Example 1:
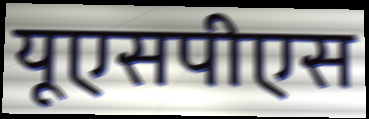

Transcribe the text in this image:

यूएसपीएस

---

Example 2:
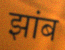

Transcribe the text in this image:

झांब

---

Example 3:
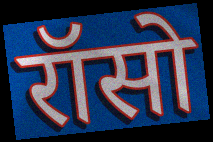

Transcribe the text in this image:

रॉसो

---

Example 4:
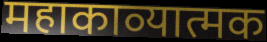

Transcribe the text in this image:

महाकाव्‍यात्‍मक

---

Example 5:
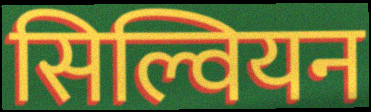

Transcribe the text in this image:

सिल्वियन